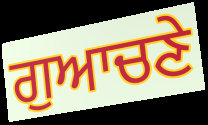
ਗੁਆਚਣੇ